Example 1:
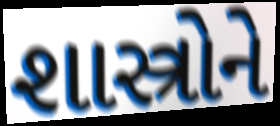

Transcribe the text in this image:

શાસ્ત્રોને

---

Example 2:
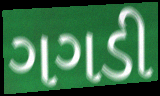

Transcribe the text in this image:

ગગડી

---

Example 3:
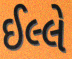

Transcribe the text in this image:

ઈલ્લે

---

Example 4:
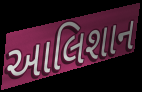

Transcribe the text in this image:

આલિશાન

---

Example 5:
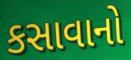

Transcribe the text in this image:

કસાવાનો